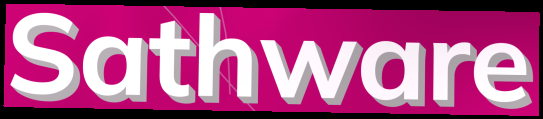
Sathware